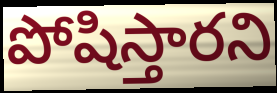
పోషిస్తారని